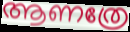
ആണത്രേ